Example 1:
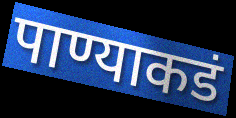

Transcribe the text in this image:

पाण्याकडं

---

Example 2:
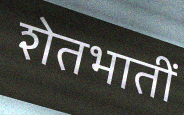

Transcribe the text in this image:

शेतभातीं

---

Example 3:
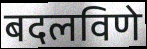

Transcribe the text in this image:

बदलविणे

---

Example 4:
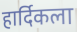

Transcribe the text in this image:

हार्दिकला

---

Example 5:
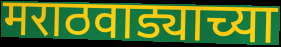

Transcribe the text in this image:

मराठवाड्याच्या